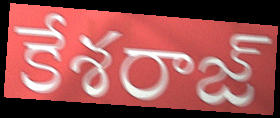
కేశరాజ్